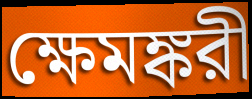
ক্ষেমঙ্করী